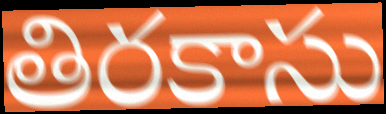
తిరకాసు